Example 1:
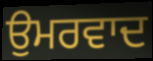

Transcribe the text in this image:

ਉਮਰਵਾਦ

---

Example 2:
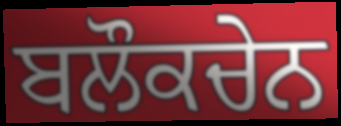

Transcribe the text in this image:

ਬਲੌਕਚੇਨ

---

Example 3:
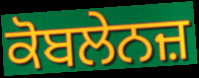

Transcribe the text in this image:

ਕੋਬਲੇਨਜ਼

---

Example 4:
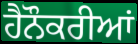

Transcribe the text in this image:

ਹੈਨੌਕਰੀਆਂ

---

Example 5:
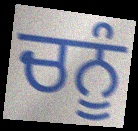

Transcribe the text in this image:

ਚਨੂੰ